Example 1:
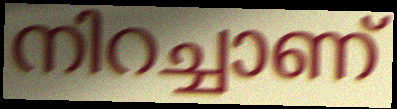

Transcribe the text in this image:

നിറച്ചാണ്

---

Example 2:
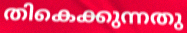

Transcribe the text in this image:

തികെക്കുന്നതു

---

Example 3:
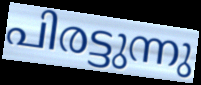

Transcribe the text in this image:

പിരട്ടുന്നു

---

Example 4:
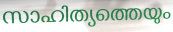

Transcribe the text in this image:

സാഹിത്യത്തെയും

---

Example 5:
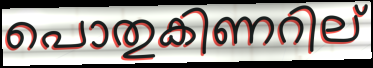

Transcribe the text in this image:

പൊതുകിണറില്